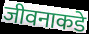
जीवनाकडे